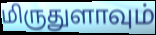
மிருதுளாவும்